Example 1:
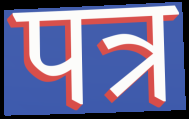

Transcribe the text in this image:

पत्र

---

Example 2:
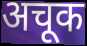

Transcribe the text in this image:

अचूक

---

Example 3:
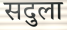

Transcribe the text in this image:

सदुला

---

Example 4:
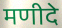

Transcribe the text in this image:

मणीदे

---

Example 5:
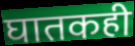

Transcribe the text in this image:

घातकही